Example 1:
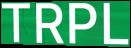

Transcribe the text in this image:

TRPL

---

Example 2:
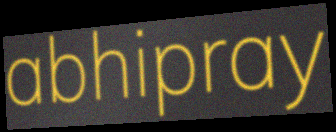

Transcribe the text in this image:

abhipray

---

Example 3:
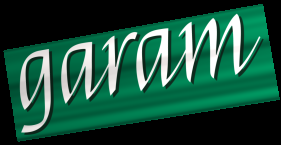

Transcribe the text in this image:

garam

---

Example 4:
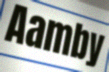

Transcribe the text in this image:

Aamby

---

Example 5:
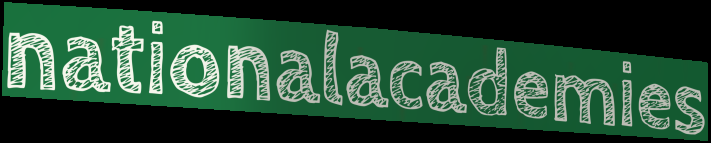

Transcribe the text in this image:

nationalacademies